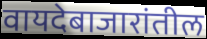
वायदेबाजारांतील